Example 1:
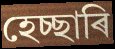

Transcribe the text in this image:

হেচ্ছাৰি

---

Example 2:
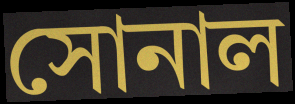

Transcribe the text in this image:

সোনাল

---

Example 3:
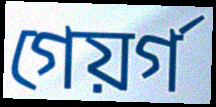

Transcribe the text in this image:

গেয়ৰ্গ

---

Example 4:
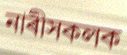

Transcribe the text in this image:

নাৰীসকলক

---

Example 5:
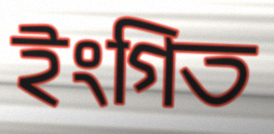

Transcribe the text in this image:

ইংগিত